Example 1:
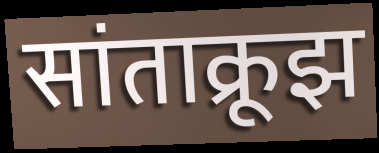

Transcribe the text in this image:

सांताक्रूझ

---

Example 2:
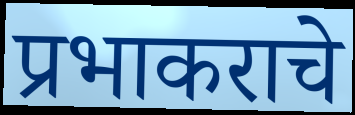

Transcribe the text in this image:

प्रभाकराचे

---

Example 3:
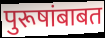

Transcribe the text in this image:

पुरूषांबाबत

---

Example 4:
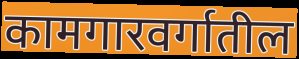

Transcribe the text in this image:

कामगारवर्गातील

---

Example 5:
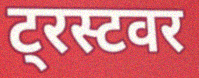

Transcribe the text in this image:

ट्रस्टवर